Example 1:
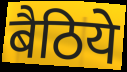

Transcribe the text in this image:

बैठिये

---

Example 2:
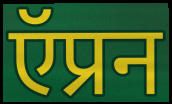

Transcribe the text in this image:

ऍप्रन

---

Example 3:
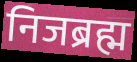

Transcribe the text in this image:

निजब्रह्म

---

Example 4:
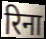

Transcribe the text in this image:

रिना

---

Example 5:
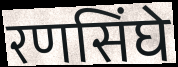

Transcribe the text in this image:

रणसिंघे